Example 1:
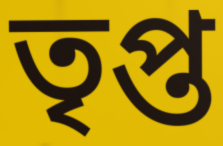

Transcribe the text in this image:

তৃপ্ত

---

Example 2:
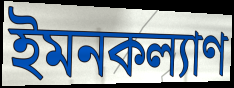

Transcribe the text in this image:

ইমনকল্যাণ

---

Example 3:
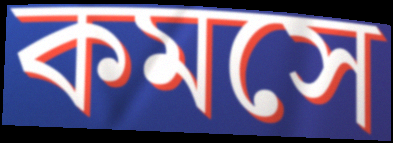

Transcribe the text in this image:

কমসে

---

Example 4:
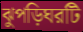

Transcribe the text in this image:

ঝুপড়িঘরটি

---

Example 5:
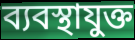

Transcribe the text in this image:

ব্যবস্থাযুক্ত